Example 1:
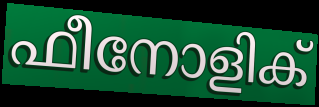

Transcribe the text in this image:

ഫീനോളിക്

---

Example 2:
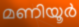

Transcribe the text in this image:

മണിയൂർ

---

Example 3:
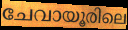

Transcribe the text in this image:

ചേവായൂരിലെ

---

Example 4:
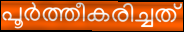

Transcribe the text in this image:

പൂർത്തീകരിച്ചത്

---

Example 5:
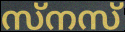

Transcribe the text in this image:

സ്നസ്